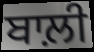
ਬਾਲ਼ੀ